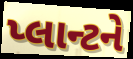
પ્લાન્ટને